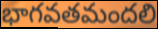
భాగవతమందలి